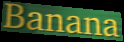
Banana